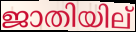
ജാതിയില്